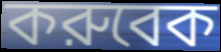
করুবেক